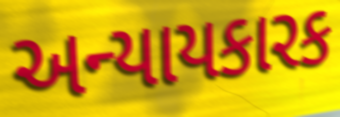
અન્યાયકારક